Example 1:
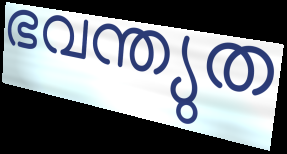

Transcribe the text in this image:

ഭവന്ത്യുത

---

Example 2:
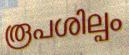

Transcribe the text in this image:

രൂപശില്പം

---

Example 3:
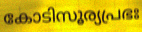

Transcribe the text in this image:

കോടിസൂര്യപ്രഭഃ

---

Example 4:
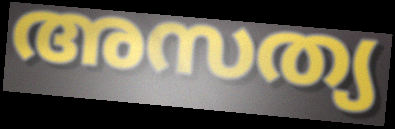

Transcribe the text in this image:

അസത്യ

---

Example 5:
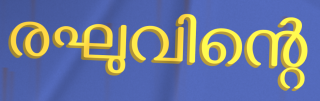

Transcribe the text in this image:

രഘുവിന്റെ